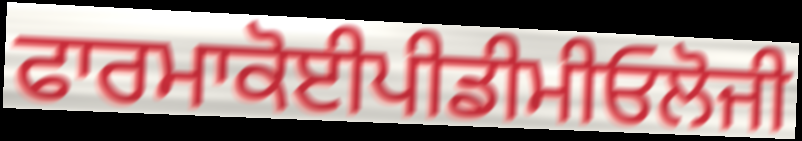
ਫਾਰਮਾਕੋਈਪੀਡੀਮੀਓਲੋਜੀ